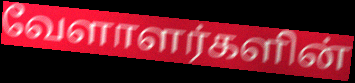
வேளாளர்களின்